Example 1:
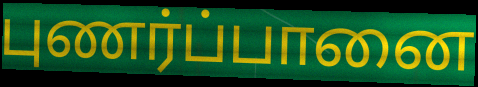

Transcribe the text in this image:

புணர்ப்பானை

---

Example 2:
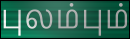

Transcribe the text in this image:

புலம்பும்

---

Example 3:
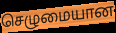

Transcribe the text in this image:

செழுமையான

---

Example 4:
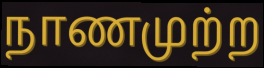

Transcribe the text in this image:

நாணமுற்ற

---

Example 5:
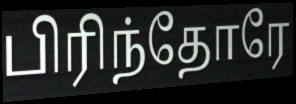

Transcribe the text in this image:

பிரிந்தோரே